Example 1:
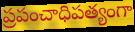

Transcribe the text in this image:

ప్రపంచాధిపత్యంగా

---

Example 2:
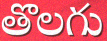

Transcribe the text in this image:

తొలగు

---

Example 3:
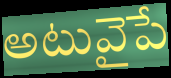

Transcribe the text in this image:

అటువైపే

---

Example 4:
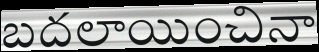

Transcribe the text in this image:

బదలాయించినా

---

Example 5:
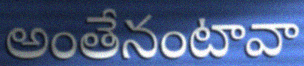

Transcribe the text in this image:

అంతేనంటావా